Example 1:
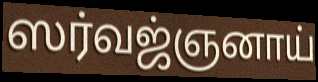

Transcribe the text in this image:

ஸர்வஜ்ஞனாய்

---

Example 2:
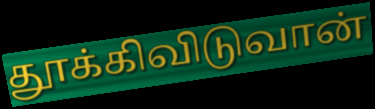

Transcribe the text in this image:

தூக்கிவிடுவான்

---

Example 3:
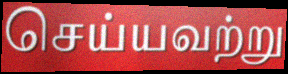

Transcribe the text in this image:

செய்யவற்று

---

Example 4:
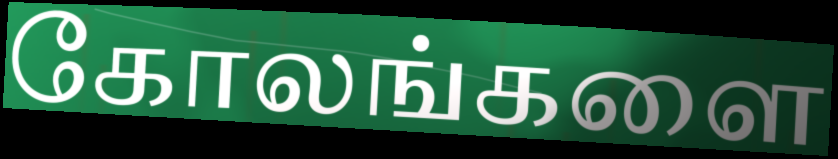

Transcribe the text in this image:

கோலங்களை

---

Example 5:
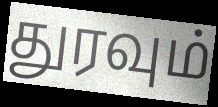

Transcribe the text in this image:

துரவும்